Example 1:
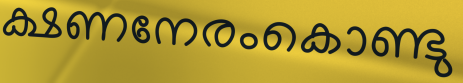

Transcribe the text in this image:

ക്ഷണനേരംകൊണ്ടു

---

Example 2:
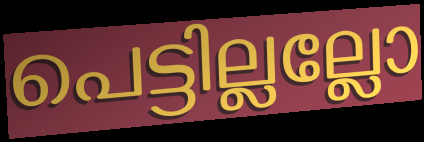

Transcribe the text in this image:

പെട്ടില്ലല്ലോ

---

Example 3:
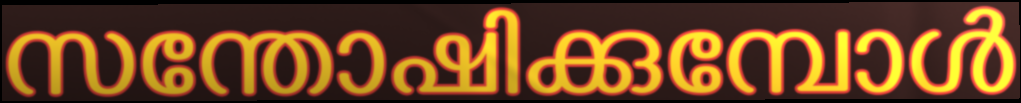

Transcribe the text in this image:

സന്തോഷിക്കുമ്പോൾ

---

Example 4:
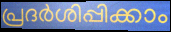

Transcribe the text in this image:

പ്രദർശിപ്പിക്കാം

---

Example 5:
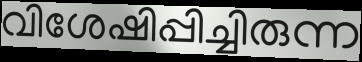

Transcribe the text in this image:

വിശേഷിപ്പിച്ചിരുന്ന